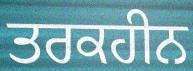
ਤਰਕਹੀਨ